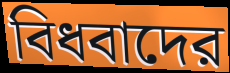
বিধবাদের